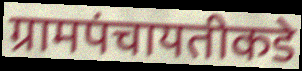
ग्रामपंचायतीकडे